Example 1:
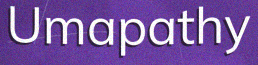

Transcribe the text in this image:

Umapathy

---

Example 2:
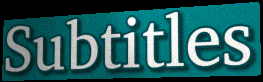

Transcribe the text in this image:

Subtitles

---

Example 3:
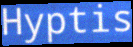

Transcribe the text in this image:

Hyptis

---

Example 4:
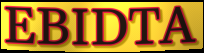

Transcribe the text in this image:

EBIDTA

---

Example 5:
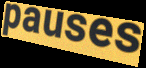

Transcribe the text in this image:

pauses